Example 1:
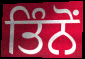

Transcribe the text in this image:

ਤਿੰਨੋਂ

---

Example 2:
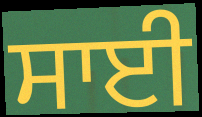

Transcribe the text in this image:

ਸਾਈ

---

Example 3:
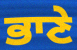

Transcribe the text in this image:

ਭਾਣੇ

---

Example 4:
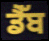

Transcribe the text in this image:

ਡੈੱਬ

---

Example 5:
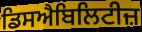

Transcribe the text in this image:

ਡਿਸਐਬਿਲਿਟੀਜ਼